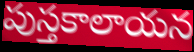
పుస్తకాలాయన